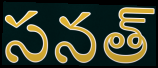
సనత్